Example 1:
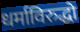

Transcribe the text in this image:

धर्माविरुद्धो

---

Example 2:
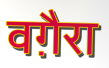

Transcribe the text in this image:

वग़ैरा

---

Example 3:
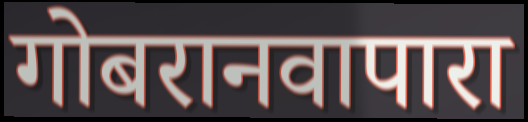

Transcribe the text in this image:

गोबरानवापारा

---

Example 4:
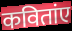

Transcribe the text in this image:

कवितांए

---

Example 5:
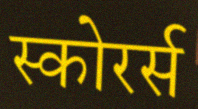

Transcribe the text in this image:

स्कोरर्स